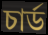
চার্ড